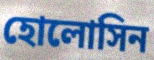
হোলোসিন